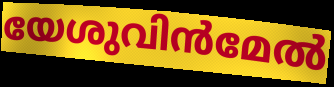
യേശുവിൻമേൽ